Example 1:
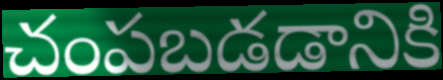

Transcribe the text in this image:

చంపబడడానికి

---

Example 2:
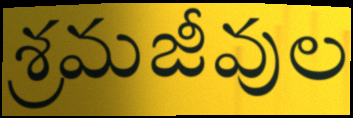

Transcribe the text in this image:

శ్రమజీవుల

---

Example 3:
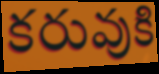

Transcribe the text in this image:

కరువుకి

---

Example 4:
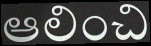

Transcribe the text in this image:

ఆలించి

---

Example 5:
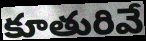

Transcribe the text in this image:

కూతురివే